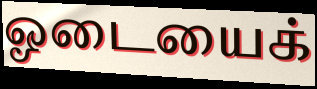
ஓடையைக்